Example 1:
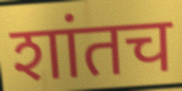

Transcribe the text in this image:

शांतच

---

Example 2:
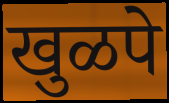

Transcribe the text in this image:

खुळपे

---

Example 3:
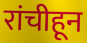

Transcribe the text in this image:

रांचीहून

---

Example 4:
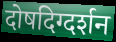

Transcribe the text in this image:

दोषदिग्दर्शन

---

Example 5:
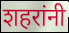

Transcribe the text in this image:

शहरांनी